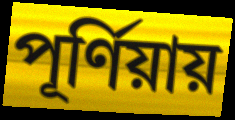
পূর্ণিয়ায়